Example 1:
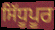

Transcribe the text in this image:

ਸਿੱਧੂਪੂਰ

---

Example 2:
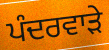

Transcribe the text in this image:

ਪੰਦਰਵਾੜੇ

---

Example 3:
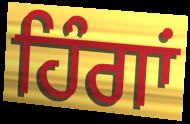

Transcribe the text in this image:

ਹਿੰਗਾਂ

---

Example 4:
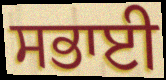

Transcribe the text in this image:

ਸਭਾਈ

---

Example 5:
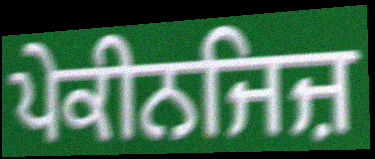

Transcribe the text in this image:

ਪੇਕੀਨਜਿਜ਼